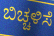
ಬಿಚ್ಚಳಿಸೆ